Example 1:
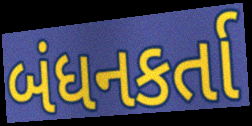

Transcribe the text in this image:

બંધનકર્તા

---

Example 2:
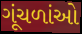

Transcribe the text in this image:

ગૂંચળાંઓ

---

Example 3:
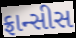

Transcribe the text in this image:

ફ્રાન્સીસ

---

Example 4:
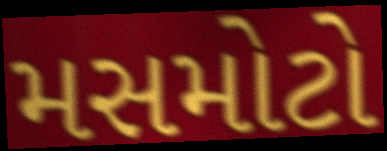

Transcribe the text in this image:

મસમોટો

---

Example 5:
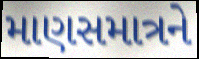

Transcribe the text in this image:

માણસમાત્રને